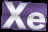
Xe